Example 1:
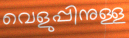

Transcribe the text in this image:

വെളുപ്പിനുള്ള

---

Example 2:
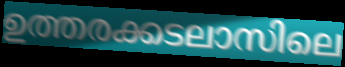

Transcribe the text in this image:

ഉത്തരക്കടലാസിലെ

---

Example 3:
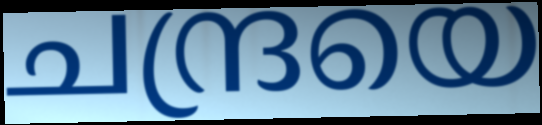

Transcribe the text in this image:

ചന്ദ്രയെ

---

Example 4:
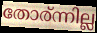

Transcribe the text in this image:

തോര്ന്നില്ല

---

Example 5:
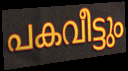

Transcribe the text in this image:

പകവീട്ടും